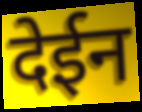
देईन